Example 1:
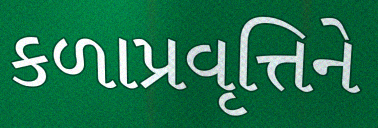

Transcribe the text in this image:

કળાપ્રવૃત્તિને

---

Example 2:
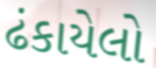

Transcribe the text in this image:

ઢંકાયેલો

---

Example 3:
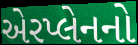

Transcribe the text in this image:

એરપ્લેનનો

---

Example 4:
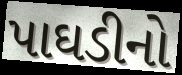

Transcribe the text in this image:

પાઘડીનો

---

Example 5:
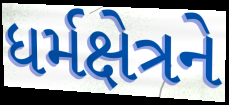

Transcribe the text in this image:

ધર્મક્ષેત્રને